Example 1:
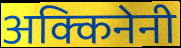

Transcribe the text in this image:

अक्किनेनी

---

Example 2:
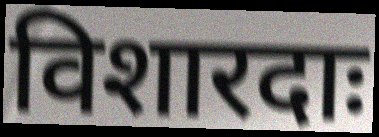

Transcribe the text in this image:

विशारदाः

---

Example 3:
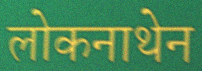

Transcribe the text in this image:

लोकनाथेन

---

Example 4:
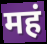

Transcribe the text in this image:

महं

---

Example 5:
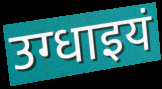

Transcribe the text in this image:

उग्धाइयं